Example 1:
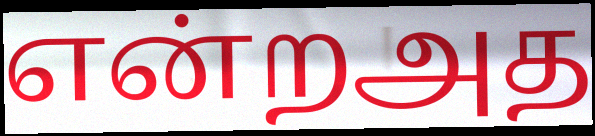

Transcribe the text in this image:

என்றஅத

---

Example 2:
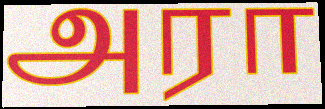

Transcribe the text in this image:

அரா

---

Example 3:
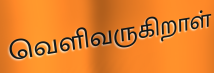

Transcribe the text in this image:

வெளிவருகிறாள்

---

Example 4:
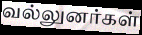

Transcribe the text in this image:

வல்லுனர்கள்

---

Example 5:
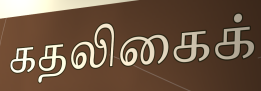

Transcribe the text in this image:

கதலிகைக்